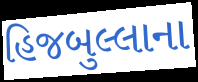
હિજબુલ્લાના